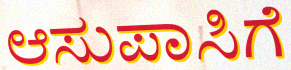
ಆಸುಪಾಸಿಗೆ